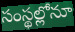
సంస్థల్లోనూ